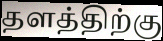
தளத்திற்கு